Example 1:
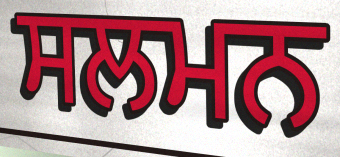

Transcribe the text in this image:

ਸਲਮਨ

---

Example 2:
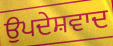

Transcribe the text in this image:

ਉਪਦੇਸ਼ਵਾਦ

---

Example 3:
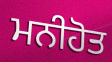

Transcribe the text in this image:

ਮਨੀਹੋਤ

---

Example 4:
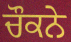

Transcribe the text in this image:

ਚੌਕਨੇ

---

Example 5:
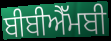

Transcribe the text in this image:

ਬੀਬੀਐੱਮਬੀ